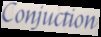
Conjuction